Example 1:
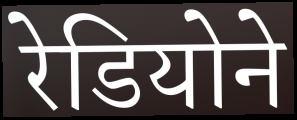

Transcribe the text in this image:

रेडियोने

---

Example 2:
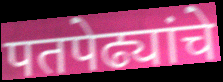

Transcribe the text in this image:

पतपेढ्यांचे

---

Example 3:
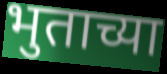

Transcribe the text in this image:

भुताच्या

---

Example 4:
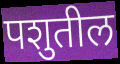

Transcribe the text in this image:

पशुतील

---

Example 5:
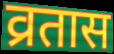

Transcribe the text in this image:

व्रतास